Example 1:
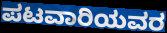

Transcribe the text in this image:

ಪಟವಾರಿಯವರ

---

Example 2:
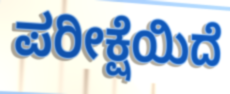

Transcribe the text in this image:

ಪರೀಕ್ಷೆಯಿದೆ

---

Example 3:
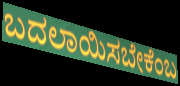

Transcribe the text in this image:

ಬದಲಾಯಿಸಬೇಕೆಂಬ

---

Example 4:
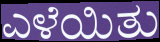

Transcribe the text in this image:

ಎಳೆಯಿತು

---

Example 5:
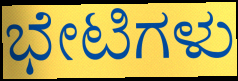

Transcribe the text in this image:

ಭೇಟಿಗಳು